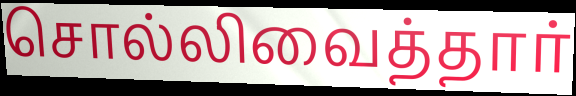
சொல்லிவைத்தார்